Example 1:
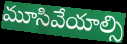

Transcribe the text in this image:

మూసివేయాల్సి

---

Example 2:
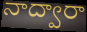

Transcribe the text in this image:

నాద్వారా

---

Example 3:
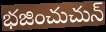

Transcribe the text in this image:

భజించుచున్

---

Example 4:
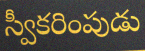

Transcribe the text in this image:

స్వీకరింపుడు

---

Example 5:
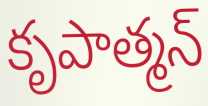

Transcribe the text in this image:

కృపాత్మన్